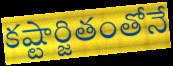
కష్టార్జితంతోనే